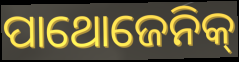
ପାଥୋଜେନିକ୍